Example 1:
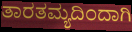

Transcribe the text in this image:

ತಾರತಮ್ಯದಿಂದಾಗಿ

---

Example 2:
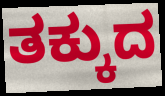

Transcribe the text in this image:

ತಕ್ಕುದ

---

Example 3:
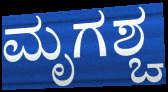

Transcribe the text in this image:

ಮೃಗಶ್ಚ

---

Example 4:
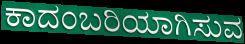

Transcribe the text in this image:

ಕಾದಂಬರಿಯಾಗಿಸುವ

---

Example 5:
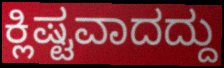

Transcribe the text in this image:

ಕ್ಲಿಷ್ಟವಾದದ್ದು